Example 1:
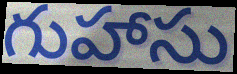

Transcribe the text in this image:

గుహాసు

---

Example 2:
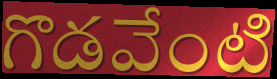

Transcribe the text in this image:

గొడవేంటి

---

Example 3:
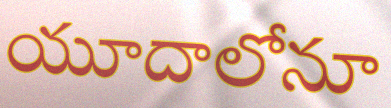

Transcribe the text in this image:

యూదాలోనూ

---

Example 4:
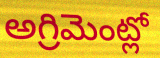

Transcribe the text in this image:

అగ్రిమెంట్లో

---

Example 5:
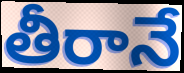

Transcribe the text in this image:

తీరానే